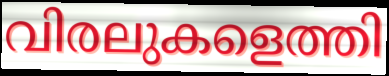
വിരലുകളെത്തി